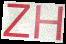
ZH